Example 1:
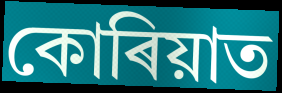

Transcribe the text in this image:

কোৰিয়াত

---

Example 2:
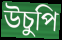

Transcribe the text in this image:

উচুপি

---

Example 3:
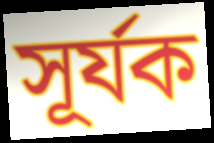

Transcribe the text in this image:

সূৰ্যক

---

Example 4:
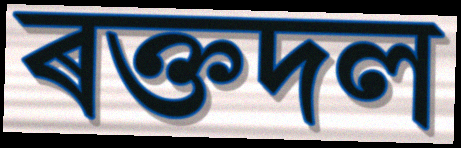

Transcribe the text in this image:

ৰক্তদল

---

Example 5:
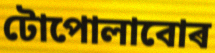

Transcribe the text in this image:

টোপোলাবোৰ